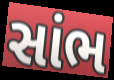
સાંભ